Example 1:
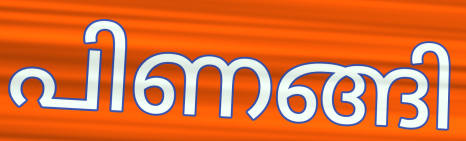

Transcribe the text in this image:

പിണങ്ങി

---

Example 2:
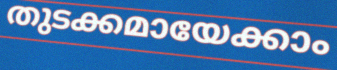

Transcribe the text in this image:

തുടക്കമായേക്കാം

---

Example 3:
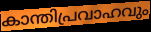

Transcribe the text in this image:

കാന്തിപ്രവാഹവും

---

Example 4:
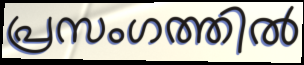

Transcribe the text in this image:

പ്രസംഗത്തിൽ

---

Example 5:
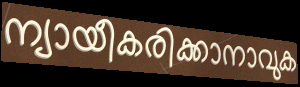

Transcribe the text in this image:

ന്യായീകരിക്കാനാവുക